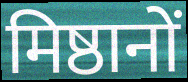
मिष्ठानों